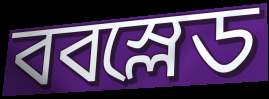
ববস্লেড